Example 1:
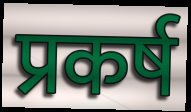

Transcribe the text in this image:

प्रकर्ष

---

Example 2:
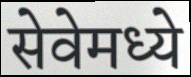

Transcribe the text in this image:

सेवेमध्ये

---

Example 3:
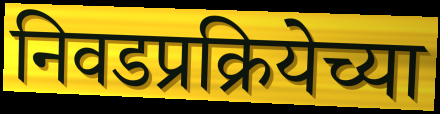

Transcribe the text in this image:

निवडप्रक्रियेच्या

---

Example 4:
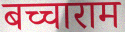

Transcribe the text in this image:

बच्चाराम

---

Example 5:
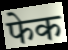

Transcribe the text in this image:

फेक